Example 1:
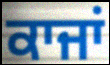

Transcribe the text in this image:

ਕਾਜਾਂ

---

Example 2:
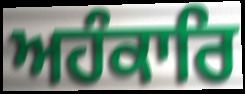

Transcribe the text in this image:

ਅਹੰਕਾਰਿ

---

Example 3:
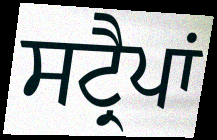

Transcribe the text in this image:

ਸਟ੍ਰੈਪਾਂ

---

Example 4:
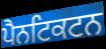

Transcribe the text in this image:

ਪੈਨਟਿਕਟਨ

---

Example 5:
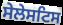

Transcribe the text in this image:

ਸੇਲੇਸਟਿਸ